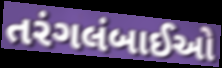
તરંગલંબાઈઓ